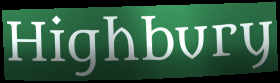
Highbury